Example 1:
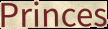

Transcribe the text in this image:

Princes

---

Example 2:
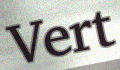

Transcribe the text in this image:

Vert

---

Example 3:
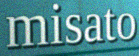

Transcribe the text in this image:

misato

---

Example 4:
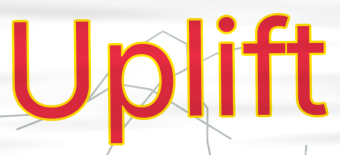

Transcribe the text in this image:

Uplift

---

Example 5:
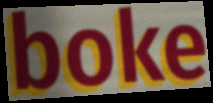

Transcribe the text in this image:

boke